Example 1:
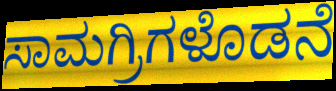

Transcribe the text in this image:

ಸಾಮಗ್ರಿಗಳೊಡನೆ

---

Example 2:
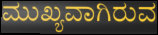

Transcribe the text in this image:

ಮುಖ್ಯವಾಗಿರುವ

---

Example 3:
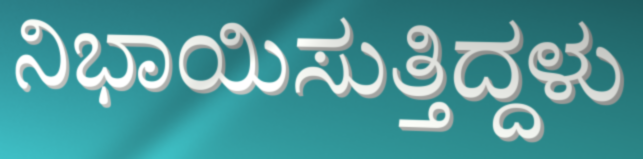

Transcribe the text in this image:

ನಿಭಾಯಿಸುತ್ತಿದ್ದಳು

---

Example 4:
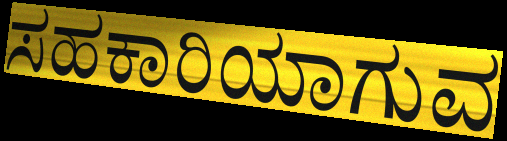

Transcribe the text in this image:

ಸಹಕಾರಿಯಾಗುವ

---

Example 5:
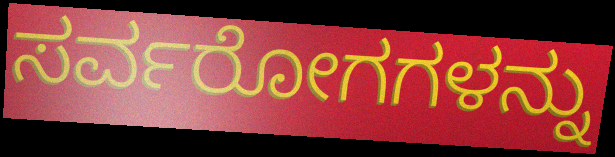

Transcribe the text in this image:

ಸರ್ವರೋಗಗಳನ್ನು